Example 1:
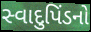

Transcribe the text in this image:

સ્વાદુપિંડનો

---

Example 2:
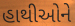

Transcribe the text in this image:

હાથીઓને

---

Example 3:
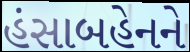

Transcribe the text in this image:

હંસાબહેનને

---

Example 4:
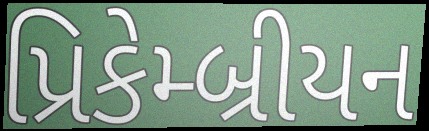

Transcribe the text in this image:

પ્રિકેમ્બ્રીયન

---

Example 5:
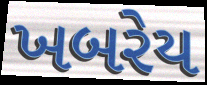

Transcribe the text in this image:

ખબરેય